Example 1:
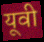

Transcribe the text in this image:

यूवी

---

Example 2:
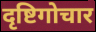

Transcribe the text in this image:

दृष्टिगोचार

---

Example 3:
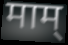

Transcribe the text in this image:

माम्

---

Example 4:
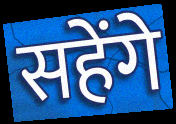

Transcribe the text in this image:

सहेंगे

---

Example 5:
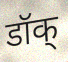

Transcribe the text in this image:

डॉक्